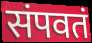
संपवतं